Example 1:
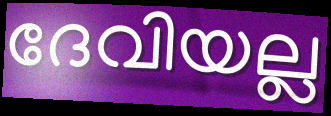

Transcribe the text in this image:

ദേവിയല്ല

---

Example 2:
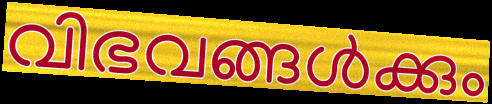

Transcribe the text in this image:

വിഭവങ്ങൾക്കും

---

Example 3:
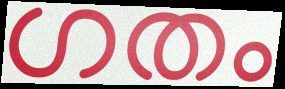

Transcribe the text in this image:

ഗതം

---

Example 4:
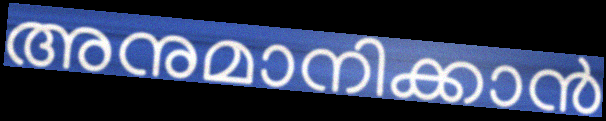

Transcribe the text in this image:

അനുമാനിക്കാൻ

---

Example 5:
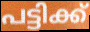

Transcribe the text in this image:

പട്ടിക്ക്